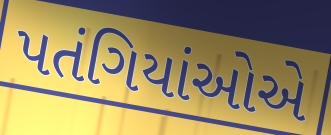
પતંગિયાંઓએ